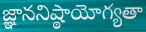
జ్ఞాననిష్ఠాయోగ్యతా